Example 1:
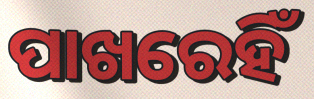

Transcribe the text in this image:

ପାଖରେହିଁ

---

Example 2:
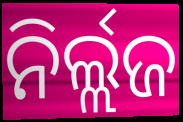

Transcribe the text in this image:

ନିର୍ଲ୍ଲଜ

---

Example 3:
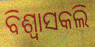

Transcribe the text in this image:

ବିଶ୍ଵାସକଲି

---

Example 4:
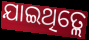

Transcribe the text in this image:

ଯାଇଥିତ୍ଲେ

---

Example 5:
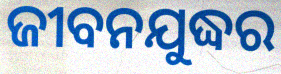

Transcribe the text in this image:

ଜୀବନଯୁଦ୍ଧର